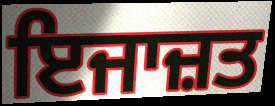
ਇਜਾਜ਼ਤ